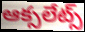
ఆక్సలేట్స్